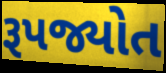
રૂપજ્યોત